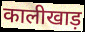
कालीखाड़